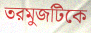
তরমুজটিকে